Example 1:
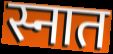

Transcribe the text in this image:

स्नात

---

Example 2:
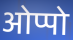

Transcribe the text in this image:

ओप्पो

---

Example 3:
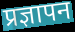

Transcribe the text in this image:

प्रज्ञापन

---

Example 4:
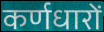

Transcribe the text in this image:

कर्णधारों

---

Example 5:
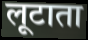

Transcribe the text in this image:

लूटाता